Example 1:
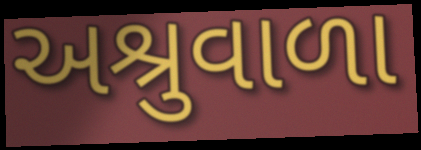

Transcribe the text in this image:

અશ્રુવાળા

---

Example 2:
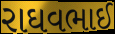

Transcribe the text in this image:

રાઘવભાઈ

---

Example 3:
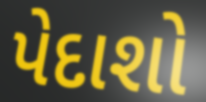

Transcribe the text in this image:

પેદાશો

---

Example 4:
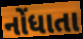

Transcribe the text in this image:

નોંધાતા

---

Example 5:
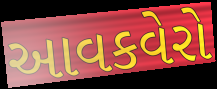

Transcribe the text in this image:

આવકવેરો